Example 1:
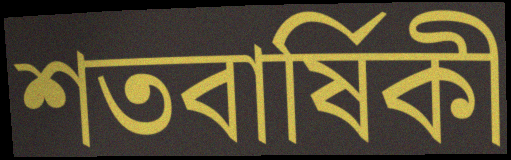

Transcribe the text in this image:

শতবাৰ্ষিকী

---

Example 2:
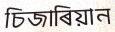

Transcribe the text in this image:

চিজাৰিয়ান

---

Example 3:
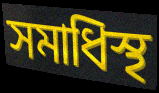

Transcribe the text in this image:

সমাধিস্থ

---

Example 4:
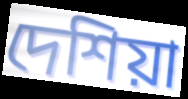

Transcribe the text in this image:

দেশিয়া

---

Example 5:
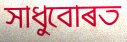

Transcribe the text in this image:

সাধুবোৰত